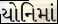
યોનિમાં